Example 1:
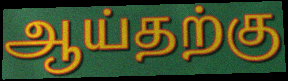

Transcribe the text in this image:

ஆய்தற்கு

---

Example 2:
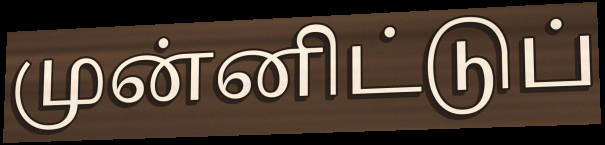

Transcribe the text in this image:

முன்னிட்டுப்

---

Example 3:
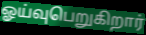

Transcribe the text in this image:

ஓய்வுபெறுகிறார்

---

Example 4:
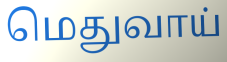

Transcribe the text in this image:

மெதுவாய்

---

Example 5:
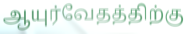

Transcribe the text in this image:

ஆயுர்வேதத்திற்கு